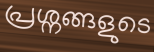
പ്രശ്നങ്ങളുടെ